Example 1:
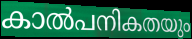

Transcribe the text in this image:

കാൽപനികതയും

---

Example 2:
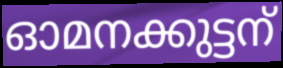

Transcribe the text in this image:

ഓമനക്കുട്ടന്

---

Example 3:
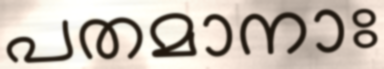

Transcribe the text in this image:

പതമാനാഃ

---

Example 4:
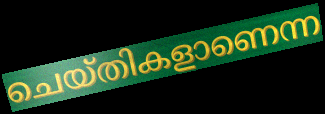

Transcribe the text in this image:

ചെയ്തികളാണെന്ന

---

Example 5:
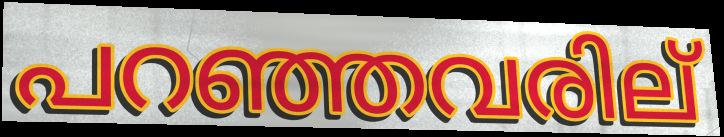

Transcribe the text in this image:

പറഞ്ഞവരില്